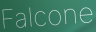
Falcone